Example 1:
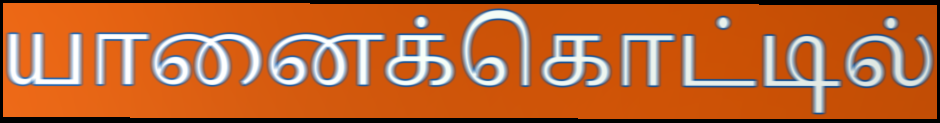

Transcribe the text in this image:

யானைக்கொட்டில்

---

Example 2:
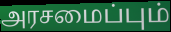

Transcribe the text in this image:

அரசமைப்பும்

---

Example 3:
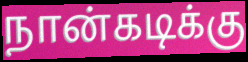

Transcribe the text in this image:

நான்கடிக்கு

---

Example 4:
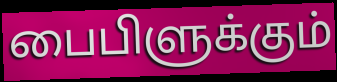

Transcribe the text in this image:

பைபிளுக்கும்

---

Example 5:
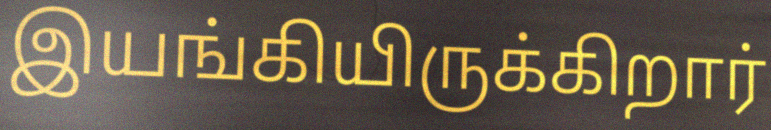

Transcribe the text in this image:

இயங்கியிருக்கிறார்